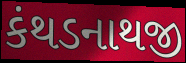
કંથડનાથજી